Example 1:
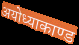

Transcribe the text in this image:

अयोध्याकाण्ड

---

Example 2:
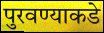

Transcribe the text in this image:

पुरवण्याकडे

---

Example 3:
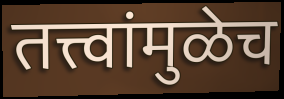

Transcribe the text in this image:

तत्त्वांमुळेच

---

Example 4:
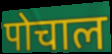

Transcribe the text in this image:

पोचाल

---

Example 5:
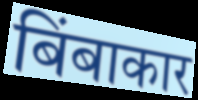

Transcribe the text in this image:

बिंबाकार